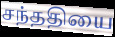
சந்ததியை